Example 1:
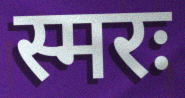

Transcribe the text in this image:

स्मरः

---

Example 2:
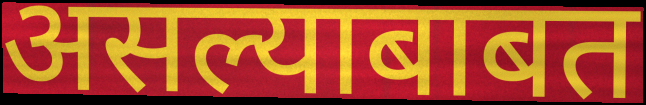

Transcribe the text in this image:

असल्याबाबत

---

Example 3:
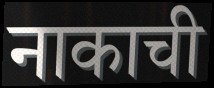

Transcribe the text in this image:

नाकाची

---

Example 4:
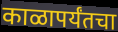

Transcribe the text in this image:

काळापर्यंतचा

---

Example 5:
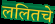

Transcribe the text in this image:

ललितचे